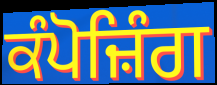
ਕੰਪੋਜ਼ਿੰਗ